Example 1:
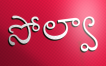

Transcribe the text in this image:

సోల్వా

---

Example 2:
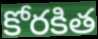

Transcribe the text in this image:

కోరకిత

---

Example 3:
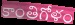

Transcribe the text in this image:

కాంతిగోళం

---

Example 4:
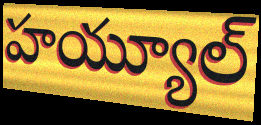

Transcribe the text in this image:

హయ్యూల్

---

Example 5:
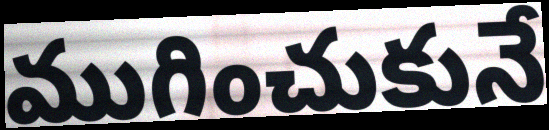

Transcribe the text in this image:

ముగించుకునే